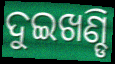
ଦୁଇଖଣ୍ଡି